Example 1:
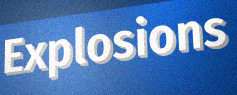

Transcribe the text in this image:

Explosions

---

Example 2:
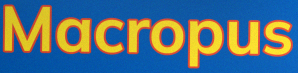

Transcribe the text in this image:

Macropus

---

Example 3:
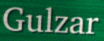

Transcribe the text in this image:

Gulzar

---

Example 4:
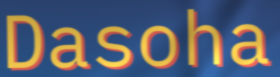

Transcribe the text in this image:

Dasoha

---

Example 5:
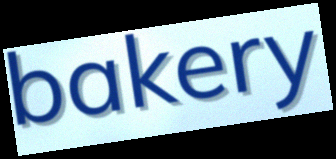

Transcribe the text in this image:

bakery